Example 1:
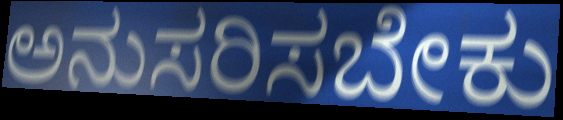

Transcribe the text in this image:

ಅನುಸರಿಸಬೇಕು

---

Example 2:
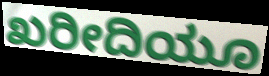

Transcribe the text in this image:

ಖರೀದಿಯೂ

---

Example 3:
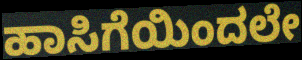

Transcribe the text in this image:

ಹಾಸಿಗೆಯಿಂದಲೇ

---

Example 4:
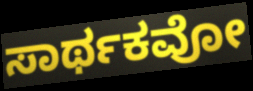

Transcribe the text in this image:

ಸಾರ್ಥಕವೋ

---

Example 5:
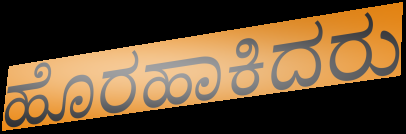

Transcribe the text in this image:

ಹೊರಹಾಕಿದರು